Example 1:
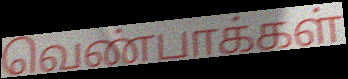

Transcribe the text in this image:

வெண்பாக்கள்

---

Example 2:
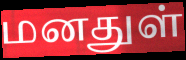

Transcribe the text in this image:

மனதுள்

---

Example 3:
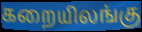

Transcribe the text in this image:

கறையிலங்கு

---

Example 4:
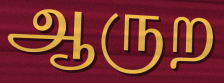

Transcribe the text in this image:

ஆருற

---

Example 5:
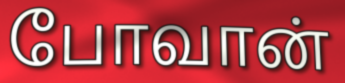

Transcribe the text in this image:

போவான்